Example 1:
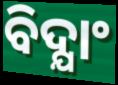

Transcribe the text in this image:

ବିଦ୍ଯାଂ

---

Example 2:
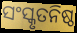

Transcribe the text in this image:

ସଂସ୍କୃତନିଷ୍ଠ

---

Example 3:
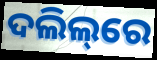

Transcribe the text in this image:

ଦଲିଲ୍‌ରେ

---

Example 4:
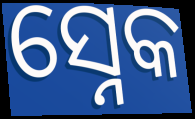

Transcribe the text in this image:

ସ୍ନେକ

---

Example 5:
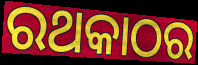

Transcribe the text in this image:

ରଥକାଠର